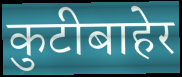
कुटीबाहेर